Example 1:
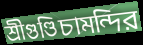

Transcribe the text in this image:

শ্রীগুণ্ডিচামন্দির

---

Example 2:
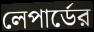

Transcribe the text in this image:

লেপার্ডের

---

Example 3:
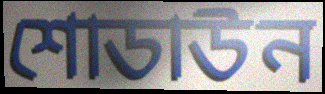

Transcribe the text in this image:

শোডাউন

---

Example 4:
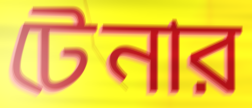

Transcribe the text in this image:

টেনার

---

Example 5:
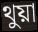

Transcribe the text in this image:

থুয়া